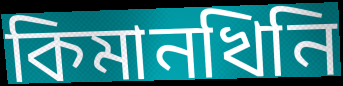
কিমানখিনি